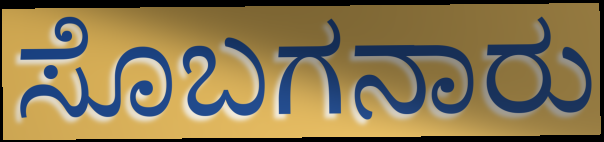
ಸೊಬಗನಾರು